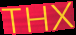
THX